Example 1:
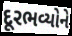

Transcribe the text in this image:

દૂરભવ્યોને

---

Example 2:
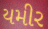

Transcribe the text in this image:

યમીર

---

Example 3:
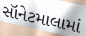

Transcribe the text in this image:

સૉનેટમાલામાં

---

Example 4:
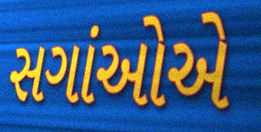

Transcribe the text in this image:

સગાંઓએ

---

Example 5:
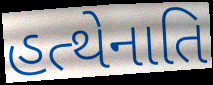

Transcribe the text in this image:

હત્થેનાતિ